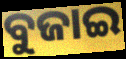
ବୁଜାଇ